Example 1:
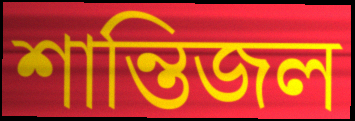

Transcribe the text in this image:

শান্তিজল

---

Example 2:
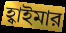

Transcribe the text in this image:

হ্বাইমার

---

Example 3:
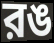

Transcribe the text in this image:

রঙ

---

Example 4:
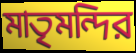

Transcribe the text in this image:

মাতৃমন্দির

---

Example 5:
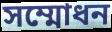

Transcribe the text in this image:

সম্মোধন